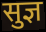
सुज्ञ